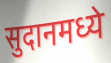
सुदानमध्ये